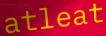
atleat